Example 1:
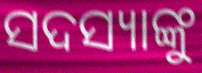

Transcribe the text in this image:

ସଦସ୍ୟାଙ୍କୁ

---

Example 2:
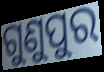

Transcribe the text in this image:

ଗୁଣୁପୁର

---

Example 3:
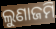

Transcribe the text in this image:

ଲୁଣାଜମି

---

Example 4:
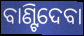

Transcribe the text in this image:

ବାଣ୍ଟିଦେବା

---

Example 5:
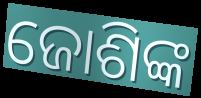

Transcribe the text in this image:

ଜୋଶିଙ୍କ